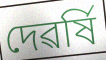
দেৱৰ্ষি